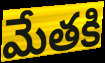
మేతకి